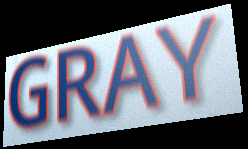
GRAY